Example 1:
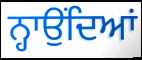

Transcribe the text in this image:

ਨ੍ਹਾਉਂਦਿਆਂ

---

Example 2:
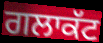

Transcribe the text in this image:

ਗਲਾਕੱਟ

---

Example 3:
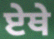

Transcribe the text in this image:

ਏਥੇ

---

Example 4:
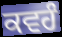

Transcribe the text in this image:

ਕਵਹੰ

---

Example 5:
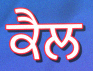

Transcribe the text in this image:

ਕੈਲ